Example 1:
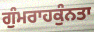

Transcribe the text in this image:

ਗੁੰਮਰਾਹਕੁੰਨਤਾ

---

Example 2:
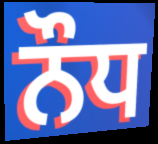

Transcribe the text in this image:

ਨੌਧ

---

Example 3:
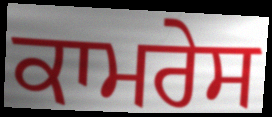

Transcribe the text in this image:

ਕਾਮਰੇਸ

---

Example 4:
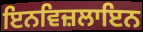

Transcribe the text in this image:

ਇਨਵਿਜ਼ਲਾਇਨ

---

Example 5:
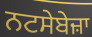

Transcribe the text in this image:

ਨਟਸੇਬੇਜ਼ਾ